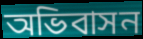
অভিবাসন